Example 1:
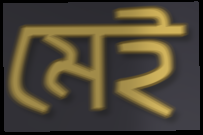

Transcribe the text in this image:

মেই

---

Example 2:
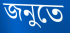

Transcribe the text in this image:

জনুতে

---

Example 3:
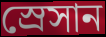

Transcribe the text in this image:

স্রেসান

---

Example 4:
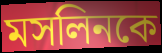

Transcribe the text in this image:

মসলিনকে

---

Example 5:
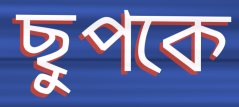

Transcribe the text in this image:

ছুপকে